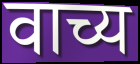
वाच्य